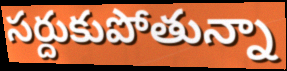
సర్దుకుపోతున్నా